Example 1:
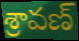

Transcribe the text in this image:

శ్రావణ్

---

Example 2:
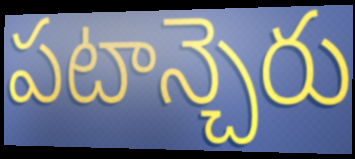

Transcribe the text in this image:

పటాన్చెరు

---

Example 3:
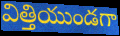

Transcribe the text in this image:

విత్తియుండగా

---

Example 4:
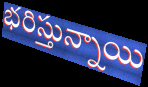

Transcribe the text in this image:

భరిస్తున్నాయి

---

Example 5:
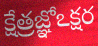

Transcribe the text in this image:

క్షేత్రజ్ఞోఽక్షర